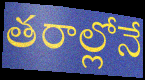
తరాల్లోనే